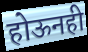
होऊनही